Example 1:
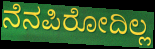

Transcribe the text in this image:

ನೆನಪಿರೋದಿಲ್ಲ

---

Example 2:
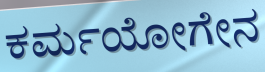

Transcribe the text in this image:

ಕರ್ಮಯೋಗೇನ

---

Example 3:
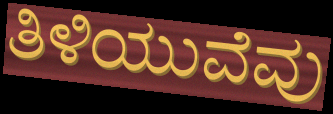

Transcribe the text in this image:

ತಿಳಿಯುವೆವು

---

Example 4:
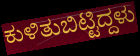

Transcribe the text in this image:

ಕುಳಿತುಬಿಟ್ಟಿದ್ದಳು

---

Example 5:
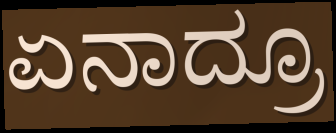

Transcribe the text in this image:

ಏನಾದ್ರೂ